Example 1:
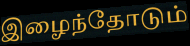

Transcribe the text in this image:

இழைந்தோடும்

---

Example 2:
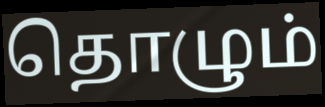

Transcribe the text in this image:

தொழும்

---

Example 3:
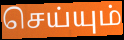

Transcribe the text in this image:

செய்யும்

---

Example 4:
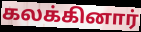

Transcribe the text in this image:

கலக்கினார்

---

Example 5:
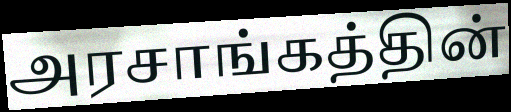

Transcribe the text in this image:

அரசாங்கத்தின்